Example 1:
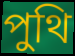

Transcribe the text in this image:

পুথি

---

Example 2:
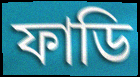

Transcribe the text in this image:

ফাডি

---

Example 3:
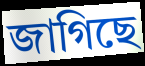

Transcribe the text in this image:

জাগিছে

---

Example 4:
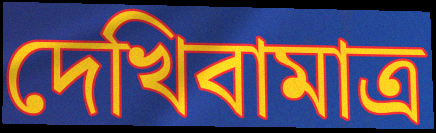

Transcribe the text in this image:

দেখিবামাত্র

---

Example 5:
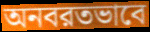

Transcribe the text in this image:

অনবরতভাবে